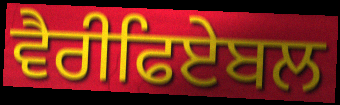
ਵੈਰੀਫਿਏਬਲ